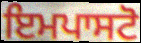
ਇਮਪਾਸਟੋ